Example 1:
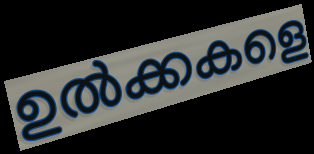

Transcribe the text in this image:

ഉൽക്കകളെ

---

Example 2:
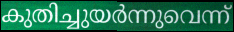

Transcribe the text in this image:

കുതിച്ചുയർന്നുവെന്ന്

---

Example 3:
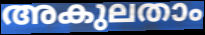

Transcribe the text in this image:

അകുലതാം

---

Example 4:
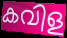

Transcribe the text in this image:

കവിള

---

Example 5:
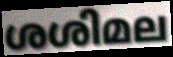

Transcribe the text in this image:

ശശിമല